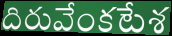
దిరువేంకటేశ